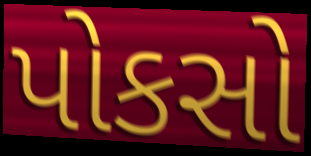
પોકસો